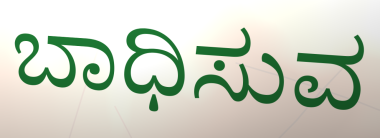
ಬಾಧಿಸುವ